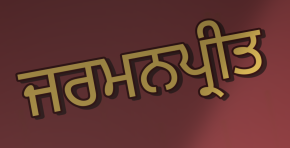
ਜਰਮਨਪ੍ਰੀਤ